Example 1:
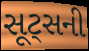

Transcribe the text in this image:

સૂટ્સની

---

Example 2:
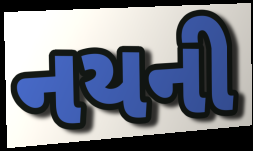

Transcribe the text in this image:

નયની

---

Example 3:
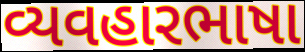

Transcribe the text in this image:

વ્યવહારભાષા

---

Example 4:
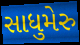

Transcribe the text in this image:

સાધુમેરુ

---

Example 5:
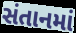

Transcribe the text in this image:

સંતાનમાં